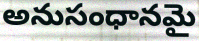
అనుసంధానమై